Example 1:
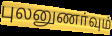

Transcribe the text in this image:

புலனுணர்வும்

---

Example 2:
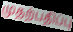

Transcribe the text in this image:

முதற்பதிப்பு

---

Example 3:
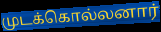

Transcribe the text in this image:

முடக்கொல்லனார்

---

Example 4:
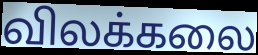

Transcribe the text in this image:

விலக்கலை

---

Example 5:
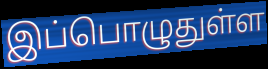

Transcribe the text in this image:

இப்பொழுதுள்ள